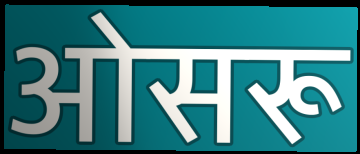
ओसरू